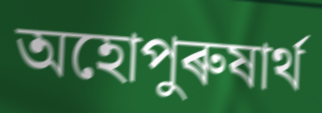
অহোপুৰুষাৰ্থ